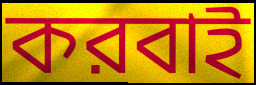
করবাই